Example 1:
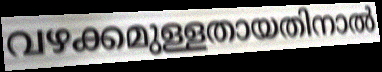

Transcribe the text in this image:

വഴക്കമുള്ളതായതിനാൽ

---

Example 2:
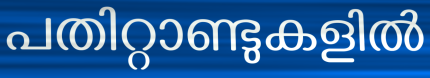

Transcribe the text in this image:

പതിറ്റാണ്ടുകളിൽ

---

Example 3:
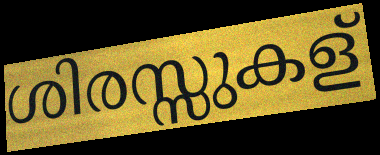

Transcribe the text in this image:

ശിരസ്സുകള്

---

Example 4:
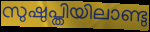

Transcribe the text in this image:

സുഷുപ്തിയിലാണ്ടു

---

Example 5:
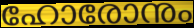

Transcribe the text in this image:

ഹോരോനും